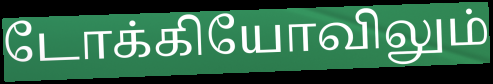
டோக்கியோவிலும்